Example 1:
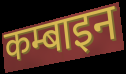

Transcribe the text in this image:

कम्बाइन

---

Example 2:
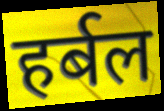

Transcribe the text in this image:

हर्बल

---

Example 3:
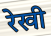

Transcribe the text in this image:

रेखी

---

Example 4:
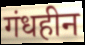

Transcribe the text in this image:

गंधहीन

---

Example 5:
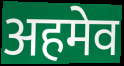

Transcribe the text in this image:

अहमेव